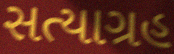
સત્‍યાગ્રહ